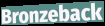
Bronzeback